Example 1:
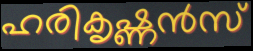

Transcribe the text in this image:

ഹരികൃഷ്ണൻസ്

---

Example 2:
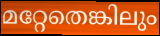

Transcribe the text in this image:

മറ്റേതെങ്കിലും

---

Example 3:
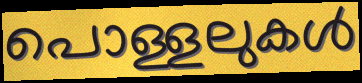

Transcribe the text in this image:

പൊള്ളലുകൾ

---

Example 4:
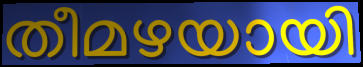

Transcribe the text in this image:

തീമഴയായി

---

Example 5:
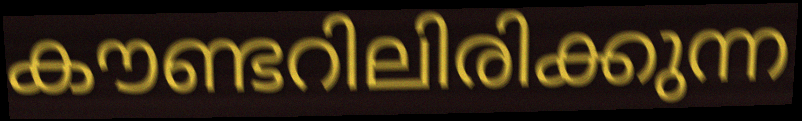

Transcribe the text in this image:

കൗണ്ടറിലിരിക്കുന്ന